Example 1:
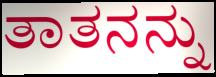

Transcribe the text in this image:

ತಾತನನ್ನು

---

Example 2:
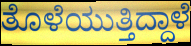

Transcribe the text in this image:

ತೊಳೆಯುತ್ತಿದ್ದಾಳೆ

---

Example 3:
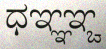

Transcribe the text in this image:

ಧಞ್ಞಞ್ಚ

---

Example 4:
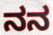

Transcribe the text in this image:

ನನ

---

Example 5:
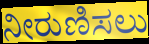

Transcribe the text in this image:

ನೀರುಣಿಸಲು